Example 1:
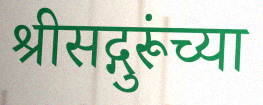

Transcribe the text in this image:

श्रीसद्गुरूंच्या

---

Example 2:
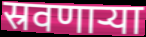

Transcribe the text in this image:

स्रवणाऱ्या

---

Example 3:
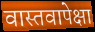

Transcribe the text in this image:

वास्तवापेक्षा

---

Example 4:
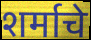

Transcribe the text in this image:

शर्माचे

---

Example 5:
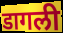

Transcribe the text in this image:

डागली